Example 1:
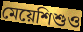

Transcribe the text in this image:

মেয়েশিশুও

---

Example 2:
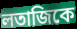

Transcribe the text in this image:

লতাজিকে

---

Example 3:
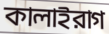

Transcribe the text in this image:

কালাইরাগ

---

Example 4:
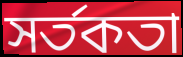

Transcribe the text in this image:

সর্তকতা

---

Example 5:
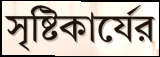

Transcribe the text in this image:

সৃষ্টিকার্যের